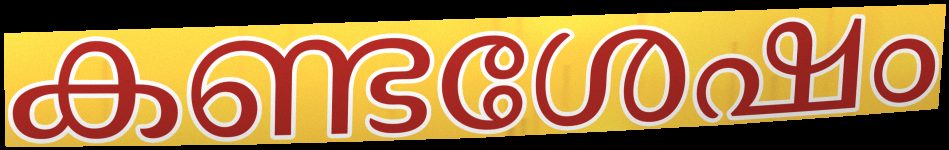
കണ്ടശേഷം